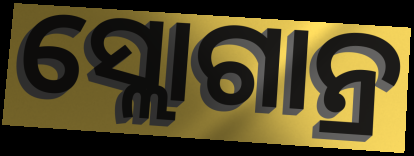
ସ୍ଲୋଗାନ୍ର